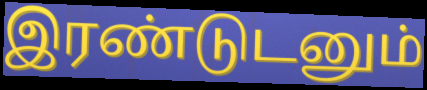
இரண்டுடனும்